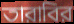
তারাবির